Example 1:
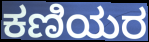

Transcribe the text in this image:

ಕಣಿಯರ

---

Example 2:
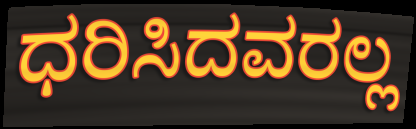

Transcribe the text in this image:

ಧರಿಸಿದವರಲ್ಲ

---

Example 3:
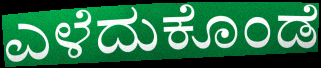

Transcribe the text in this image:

ಎಳೆದುಕೊಂಡೆ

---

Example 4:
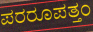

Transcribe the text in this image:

ಪರರೂಪತ್ತಂ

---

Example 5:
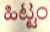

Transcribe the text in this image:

ಹಿಟ್ಟಂ